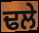
ਢਲੇ